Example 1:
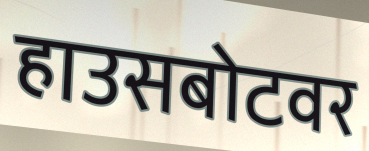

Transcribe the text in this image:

हाउसबोटवर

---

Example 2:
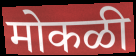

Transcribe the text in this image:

मोकळी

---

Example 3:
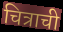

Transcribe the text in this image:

चित्राची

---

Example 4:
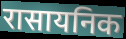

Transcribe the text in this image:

रासायनिक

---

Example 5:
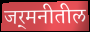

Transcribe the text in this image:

जर्मनीतील